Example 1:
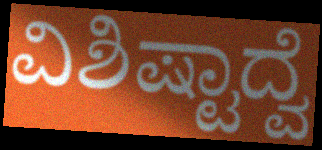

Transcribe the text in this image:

ವಿಶಿಷ್ಟಾದ್ವೆ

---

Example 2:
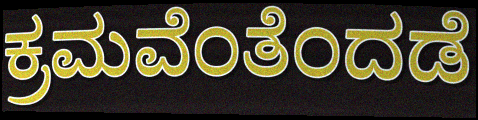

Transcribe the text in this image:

ಕ್ರಮವೆಂತೆಂದಡೆ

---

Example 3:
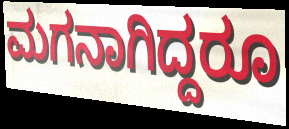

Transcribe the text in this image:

ಮಗನಾಗಿದ್ದರೂ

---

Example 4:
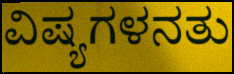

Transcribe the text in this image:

ವಿಷ್ಯಗಳನತು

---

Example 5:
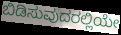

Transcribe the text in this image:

ಬಿಡಿಸುವುದರಲ್ಲಿಯೇ